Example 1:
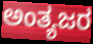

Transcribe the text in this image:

ಅಂತ್ಯಜರ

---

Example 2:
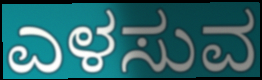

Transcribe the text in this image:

ಎಳಸುವ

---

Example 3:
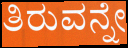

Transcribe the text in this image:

ತಿರುವನ್ನೇ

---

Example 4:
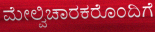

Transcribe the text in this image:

ಮೇಲ್ವಿಚಾರಕರೊಂದಿಗೆ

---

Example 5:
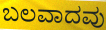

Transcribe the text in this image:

ಬಲವಾದವು